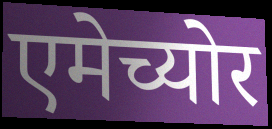
एमेच्योर